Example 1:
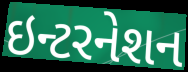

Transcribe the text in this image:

ઇન્ટરનેશન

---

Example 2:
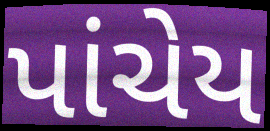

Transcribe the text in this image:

પાંચેય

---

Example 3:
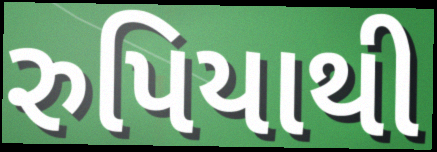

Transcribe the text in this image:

રુપિયાથી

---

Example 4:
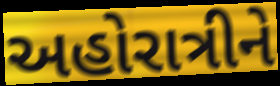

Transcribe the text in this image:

અહોરાત્રીને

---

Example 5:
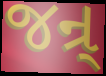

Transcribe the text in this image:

જન્ર્